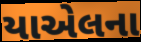
યાએલના